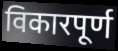
विकारपूर्ण